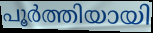
പൂർത്തിയായി